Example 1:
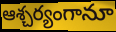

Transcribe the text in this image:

ఆశ్చర్యంగానూ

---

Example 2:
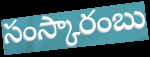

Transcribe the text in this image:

సంస్కారంబు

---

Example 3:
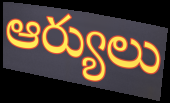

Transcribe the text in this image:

ఆర్యులు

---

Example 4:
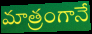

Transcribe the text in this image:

మాత్రంగానే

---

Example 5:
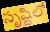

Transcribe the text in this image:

సృష్టిలో